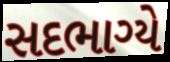
સદભાગ્યે